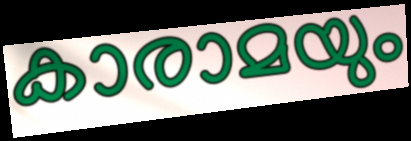
കാരാമയും